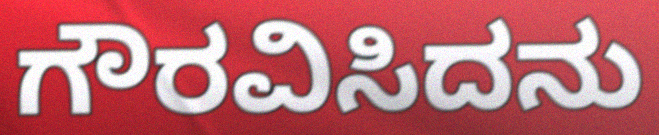
ಗೌರವಿಸಿದನು